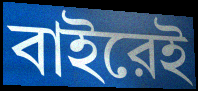
বাইরেই